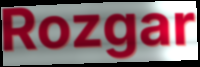
Rozgar